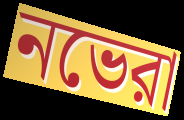
নভেরা